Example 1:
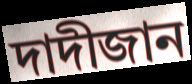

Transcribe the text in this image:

দাদীজান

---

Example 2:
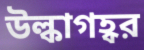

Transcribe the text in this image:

উল্কাগহ্বর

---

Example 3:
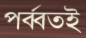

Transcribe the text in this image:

পর্ব্বতই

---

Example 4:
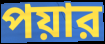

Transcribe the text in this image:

পয়ার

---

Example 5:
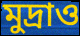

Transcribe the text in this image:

মুদ্রাও